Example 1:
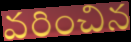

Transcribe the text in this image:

వరించిన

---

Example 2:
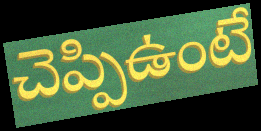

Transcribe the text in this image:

చెప్పిఉంటే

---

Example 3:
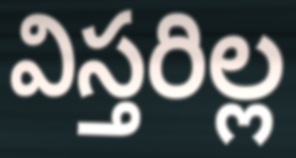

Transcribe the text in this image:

విస్తరిల్ల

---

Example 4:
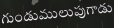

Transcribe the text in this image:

గుండుములుపుగాడు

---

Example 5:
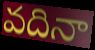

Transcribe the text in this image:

వదినా